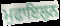
ਮੁਫਾਇਲੁਨ